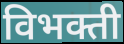
विभक्ती